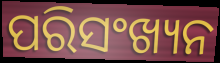
ପରିସଂଖ୍ୟନ